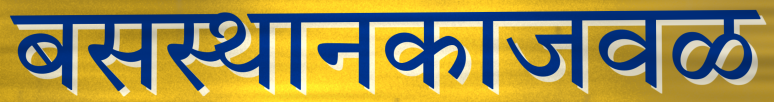
बसस्थानकाजवळ